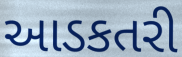
આડકતરી